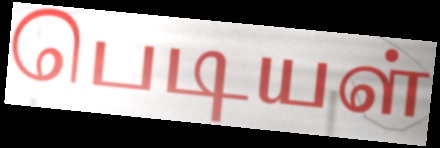
பெடியள்